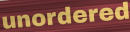
unordered